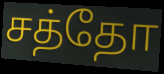
சத்தோ